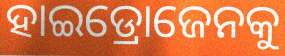
ହାଇଡ୍ରୋଜେନକୁ